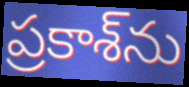
ప్రకాశ్‌ను